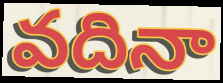
వదినా